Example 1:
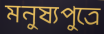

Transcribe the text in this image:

মনুষ্যপুত্রে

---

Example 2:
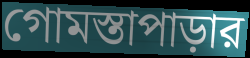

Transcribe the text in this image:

গোমস্তাপাড়ার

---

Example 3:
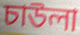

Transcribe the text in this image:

চাউলা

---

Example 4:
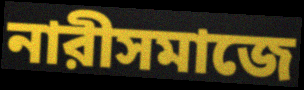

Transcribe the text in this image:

নারীসমাজে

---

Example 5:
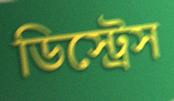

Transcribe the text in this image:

ডিস্ট্রেস